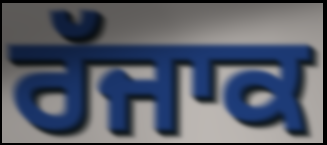
ਰੱਜਾਕ